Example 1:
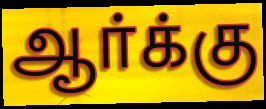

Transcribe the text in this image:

ஆர்க்கு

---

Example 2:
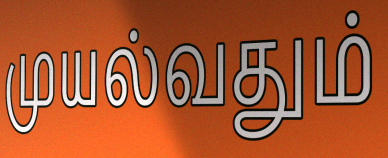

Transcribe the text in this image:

முயல்வதும்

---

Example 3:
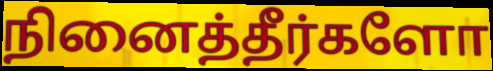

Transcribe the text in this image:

நினைத்தீர்களோ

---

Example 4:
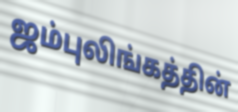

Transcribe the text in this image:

ஜம்புலிங்கத்தின்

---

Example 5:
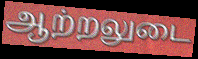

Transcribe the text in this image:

ஆற்றலுடை